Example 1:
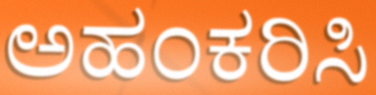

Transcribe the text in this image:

ಅಹಂಕರಿಸಿ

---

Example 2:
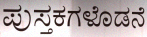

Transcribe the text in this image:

ಪುಸ್ತಕಗಳೊಡನೆ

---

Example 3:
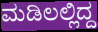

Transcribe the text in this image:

ಮಡಿಲಲ್ಲಿದ್ದ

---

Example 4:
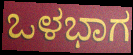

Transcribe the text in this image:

ಒಳಭಾಗ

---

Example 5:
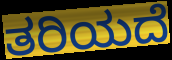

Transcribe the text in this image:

ತರಿಯದೆ